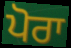
ਪੋਰਾ